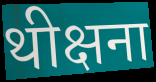
थीक्षना